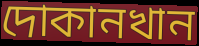
দোকানখান